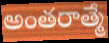
అంతరాత్మే